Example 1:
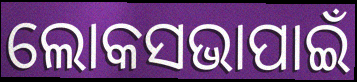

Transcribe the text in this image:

ଲୋକସଭାପାଇଁ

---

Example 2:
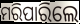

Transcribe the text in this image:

ମରିପାରିଲେ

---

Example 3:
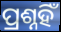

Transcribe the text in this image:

ପ୍ରଶ୍ନହିଁ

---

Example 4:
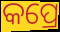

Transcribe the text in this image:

କପ୍ରେ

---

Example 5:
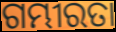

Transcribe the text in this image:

ଗମ୍ଭୀରତା